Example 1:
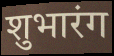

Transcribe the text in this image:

शुभारंग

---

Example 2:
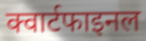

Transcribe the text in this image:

क्वार्टफाइनल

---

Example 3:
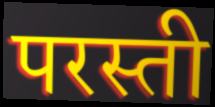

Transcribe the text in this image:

परस्ती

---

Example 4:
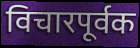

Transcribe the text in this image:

विचारपूर्वक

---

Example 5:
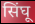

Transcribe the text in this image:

सिंघू